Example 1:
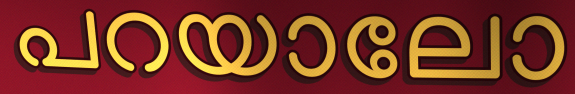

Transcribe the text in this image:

പറയാലോ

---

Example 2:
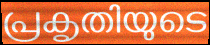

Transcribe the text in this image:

പ്രകൃതിയുടെ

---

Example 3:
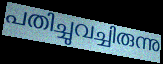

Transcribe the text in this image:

പതിച്ചുവച്ചിരുന്നു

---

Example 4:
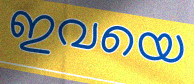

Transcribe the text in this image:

ഇവയെ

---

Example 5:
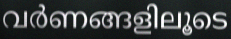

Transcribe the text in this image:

വർണങ്ങളിലൂടെ